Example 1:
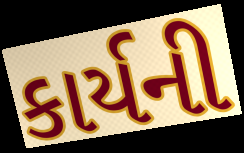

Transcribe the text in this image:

કાર્યની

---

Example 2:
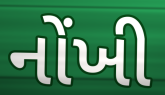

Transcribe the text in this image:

નોંખી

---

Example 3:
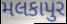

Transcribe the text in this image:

મલકાપુર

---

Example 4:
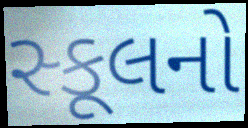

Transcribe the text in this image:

સ્કૂલનો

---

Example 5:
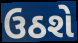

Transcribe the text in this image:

ઉઠશે